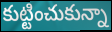
కుట్టించుకున్నా